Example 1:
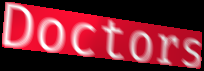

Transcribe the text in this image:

Doctors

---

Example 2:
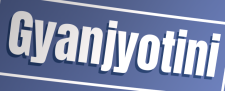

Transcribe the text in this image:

Gyanjyotini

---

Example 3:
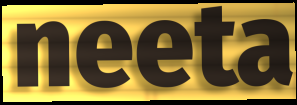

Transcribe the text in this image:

neeta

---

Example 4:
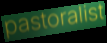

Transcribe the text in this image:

pastoralist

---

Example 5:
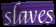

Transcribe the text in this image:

slaves